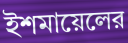
ইশমায়েলের